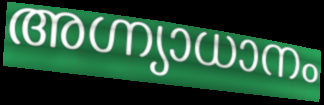
അഗ്ന്യാധാനം